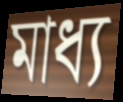
মাধ্য